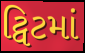
ટ્વિટમાં